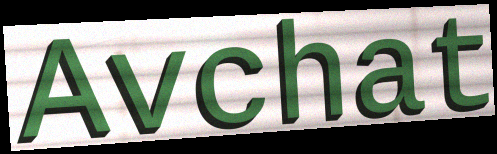
Avchat